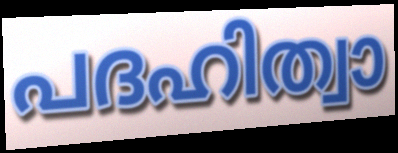
പദഹിത്വാ